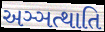
અઞ્ઞત્થાતિ